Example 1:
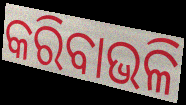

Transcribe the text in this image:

କରିବାଭଳି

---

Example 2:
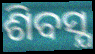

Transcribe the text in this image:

ଶିବସ୍ଯ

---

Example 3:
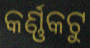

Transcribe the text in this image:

କର୍ଣ୍ଣକଟୁ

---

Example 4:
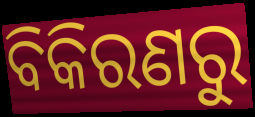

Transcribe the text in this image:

ବିକିରଣରୁ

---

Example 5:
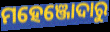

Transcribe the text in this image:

ମହେଞ୍ଜୋଦାରୁ